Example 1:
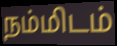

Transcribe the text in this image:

நம்மிடம்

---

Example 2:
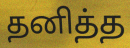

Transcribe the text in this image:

தனித்த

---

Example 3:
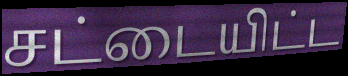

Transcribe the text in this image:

சட்டையிட்ட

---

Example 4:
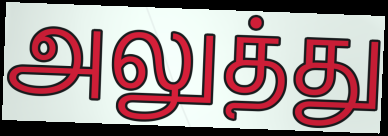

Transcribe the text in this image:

அலுத்து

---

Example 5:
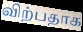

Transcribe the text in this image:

விற்பதாக